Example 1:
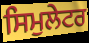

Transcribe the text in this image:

ਸਿਮੁਲੇਟਰ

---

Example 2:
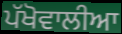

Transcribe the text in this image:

ਪੱਖੋਵਾਲੀਆ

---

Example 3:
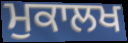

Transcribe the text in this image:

ਮੁਕਾਲਖ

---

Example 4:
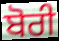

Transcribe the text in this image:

ਬੋਰੀ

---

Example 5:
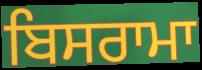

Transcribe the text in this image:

ਬਿਸਰਾਮਾ